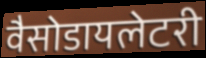
वैसोडायलेटरी